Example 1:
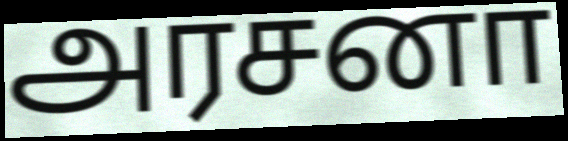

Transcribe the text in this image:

அரசனா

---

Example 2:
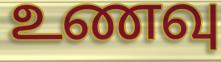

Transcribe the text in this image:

உணவு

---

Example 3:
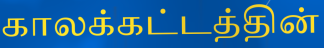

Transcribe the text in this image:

காலக்கட்டத்தின்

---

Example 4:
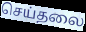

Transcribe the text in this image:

செய்தலை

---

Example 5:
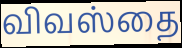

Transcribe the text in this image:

விவஸ்தை